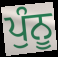
ਪੁੰਨੂ